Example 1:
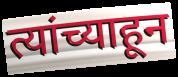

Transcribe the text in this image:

त्यांच्याहून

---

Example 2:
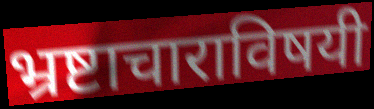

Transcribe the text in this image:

भ्रष्टाचाराविषयी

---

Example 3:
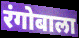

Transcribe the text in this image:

रंगोबाला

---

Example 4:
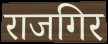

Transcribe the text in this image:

राजगिर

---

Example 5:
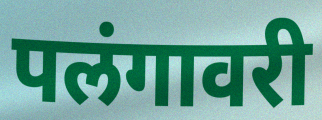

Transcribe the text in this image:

पलंगावरी